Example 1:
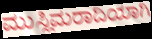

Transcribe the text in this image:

ಮುಸ್ಲಿಮರಾದಿಯಾಗಿ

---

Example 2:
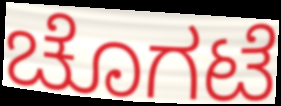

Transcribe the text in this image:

ಚೊಗಟೆ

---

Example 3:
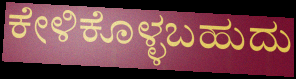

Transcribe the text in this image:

ಕೇಳಿಕೊಳ್ಳಬಹುದು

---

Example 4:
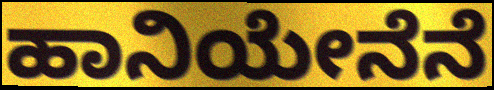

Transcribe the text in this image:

ಹಾನಿಯೇನೆನೆ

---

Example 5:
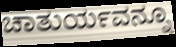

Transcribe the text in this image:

ಚಾತುರ್ಯವನ್ನೂ